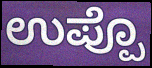
ಉಪ್ಪೊ